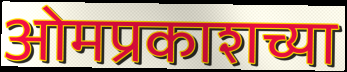
ओमप्रकाशच्या